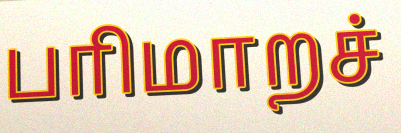
பரிமாறச்